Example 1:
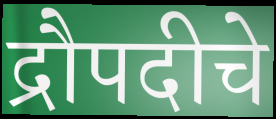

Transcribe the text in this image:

द्रौपदीचे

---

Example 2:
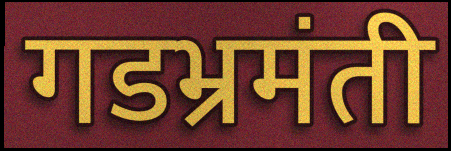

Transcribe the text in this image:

गडभ्रमंती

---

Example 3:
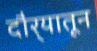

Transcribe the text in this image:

दौर्‍यातून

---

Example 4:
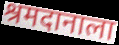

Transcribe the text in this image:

श्रमदानाला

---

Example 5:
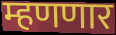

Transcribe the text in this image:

म्हणणार